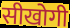
सीखोगी